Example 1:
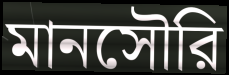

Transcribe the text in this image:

মানসৌরি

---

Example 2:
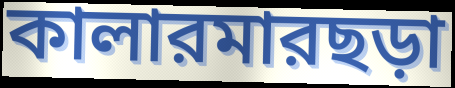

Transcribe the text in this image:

কালারমারছড়া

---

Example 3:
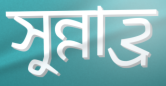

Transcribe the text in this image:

সুন্নাহ্র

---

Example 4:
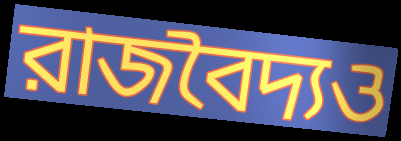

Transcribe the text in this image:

রাজবৈদ্যও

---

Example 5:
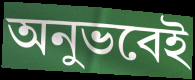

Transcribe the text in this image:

অনুভবেই